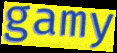
gamy